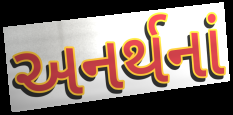
અનર્થનાં